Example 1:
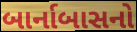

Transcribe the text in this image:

બાર્નાબાસનો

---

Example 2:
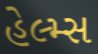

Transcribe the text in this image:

હેલ્મ્સ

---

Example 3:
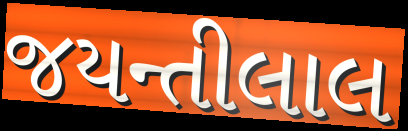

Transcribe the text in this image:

જયન્તીલાલ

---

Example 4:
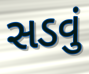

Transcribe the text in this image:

સડવું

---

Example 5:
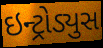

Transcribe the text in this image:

ઇન્ટ્રોડ્યુસ